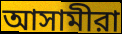
আসামীরা